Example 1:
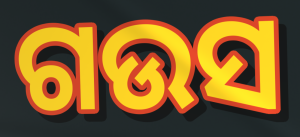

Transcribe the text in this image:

ଗଉସ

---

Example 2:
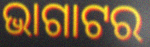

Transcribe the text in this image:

ଭାଗାଟର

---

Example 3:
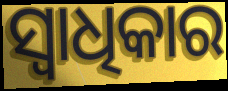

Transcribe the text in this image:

ସ୍ବାଧିକାର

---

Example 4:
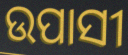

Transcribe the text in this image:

ଉପାସୀ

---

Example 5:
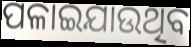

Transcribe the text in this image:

ପଳାଇଯାଉଥିବ